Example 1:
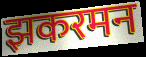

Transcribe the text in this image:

झकरमन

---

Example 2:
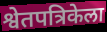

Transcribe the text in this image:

श्वेतपत्रिकेला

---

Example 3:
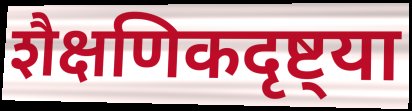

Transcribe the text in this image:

शैक्षणिकदृष्ट्या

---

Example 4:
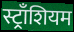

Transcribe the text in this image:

स्ट्राँशियम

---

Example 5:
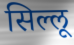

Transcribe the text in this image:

सिल्लू